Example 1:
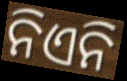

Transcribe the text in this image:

ନିଏନି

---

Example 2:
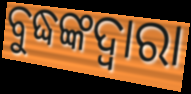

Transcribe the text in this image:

ବୁଦ୍ଧଙ୍କଦ୍ଵାରା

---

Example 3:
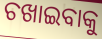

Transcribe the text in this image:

ଚଖାଇବାକୁ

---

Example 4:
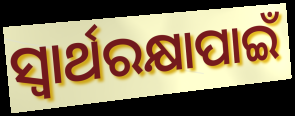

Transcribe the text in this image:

ସ୍ବାର୍ଥରକ୍ଷାପାଇଁ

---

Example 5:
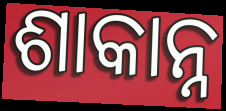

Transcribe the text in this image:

ଶାକାନ୍ନ